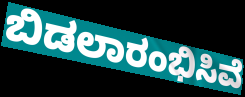
ಬಿಡಲಾರಂಭಿಸಿವೆ